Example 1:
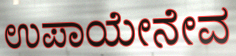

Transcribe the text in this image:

ಉಪಾಯೇನೇವ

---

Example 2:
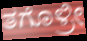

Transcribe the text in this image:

ತಗೊಳ್ರೀ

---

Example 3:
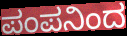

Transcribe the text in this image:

ಪಂಪನಿಂದ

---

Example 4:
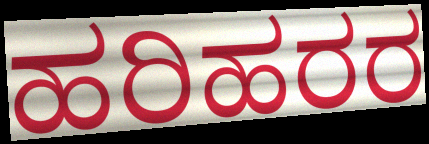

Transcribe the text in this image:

ಹರಿಹರರ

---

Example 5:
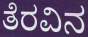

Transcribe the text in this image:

ತೆರವಿನ